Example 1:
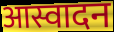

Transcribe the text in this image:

आस्वादन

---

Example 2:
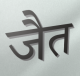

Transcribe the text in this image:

जैत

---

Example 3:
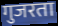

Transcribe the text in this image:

गुजरता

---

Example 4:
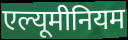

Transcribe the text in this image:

एल्यूमीनियम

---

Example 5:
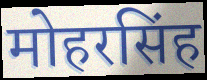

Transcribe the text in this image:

मोहरसिंह